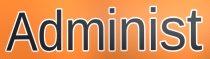
Administ